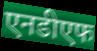
एनडीएफ